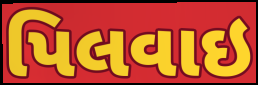
પિલવાઇ